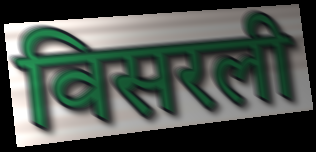
विसरली